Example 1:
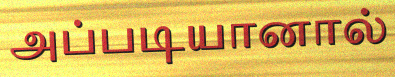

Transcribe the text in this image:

அப்படியானால்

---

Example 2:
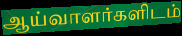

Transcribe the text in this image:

ஆய்வாளர்களிடம்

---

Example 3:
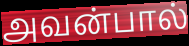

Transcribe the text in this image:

அவன்பால்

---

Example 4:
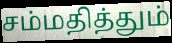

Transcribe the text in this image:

சம்மதித்தும்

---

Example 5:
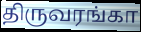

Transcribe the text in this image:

திருவரங்கா